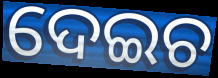
ଦେଇଚ